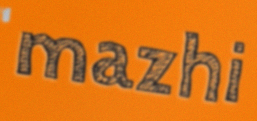
mazhi